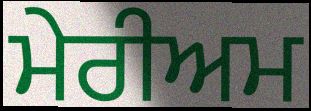
ਮੇਰੀਅਮ